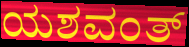
ಯಶವಂತ್